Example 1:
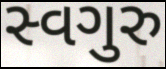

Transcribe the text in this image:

સ્વગુરુ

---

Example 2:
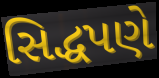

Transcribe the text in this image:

સિદ્ધપણે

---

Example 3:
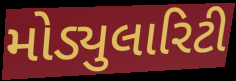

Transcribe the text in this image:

મોડ્યુલારિટી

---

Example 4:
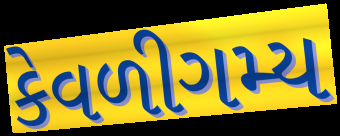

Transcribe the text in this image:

કેવળીગમ્ય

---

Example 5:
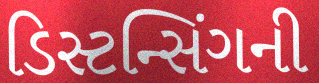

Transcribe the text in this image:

ડિસ્ટન્સિંગની